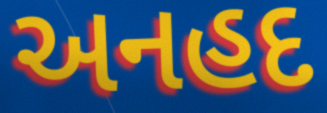
અનહદ